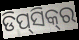
ଡିପ୍‌ସିକ୍‌ର